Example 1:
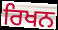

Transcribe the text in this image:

ਰਿਖਨ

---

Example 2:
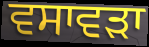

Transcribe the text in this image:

ਵਸਾਵੜਾ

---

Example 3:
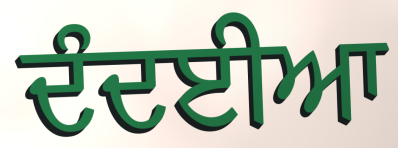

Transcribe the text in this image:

ਦੰਦਈਆ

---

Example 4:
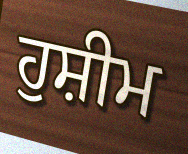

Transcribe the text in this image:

ਹੁਸ਼ੀਮ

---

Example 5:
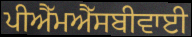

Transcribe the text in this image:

ਪੀਐੱਮਐੱਸਬੀਵਾਈ